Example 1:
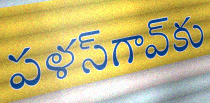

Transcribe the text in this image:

పళస్‌గావ్‌కు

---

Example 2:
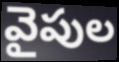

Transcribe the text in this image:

వైపుల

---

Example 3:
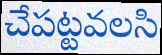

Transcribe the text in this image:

చేపట్టవలసి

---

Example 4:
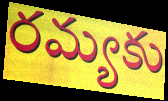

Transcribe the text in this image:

రమ్యకు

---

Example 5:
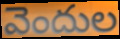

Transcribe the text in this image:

వెందుల